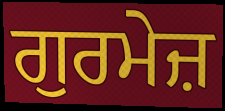
ਗੁਰਮੇਜ਼